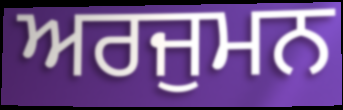
ਅਰਜੁਮਨ